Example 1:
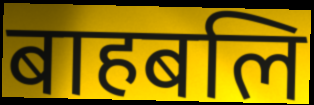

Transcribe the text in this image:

बाहबलि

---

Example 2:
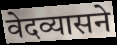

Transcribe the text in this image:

वेदव्यासने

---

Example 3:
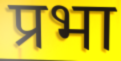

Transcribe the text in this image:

प्रभा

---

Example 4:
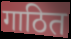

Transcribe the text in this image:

गाठित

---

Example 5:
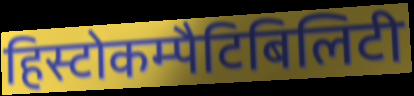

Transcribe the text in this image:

हिस्टोकम्पैटिबिलिटी